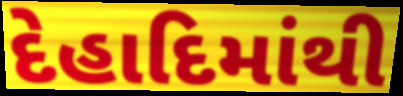
દેહાદિમાંથી